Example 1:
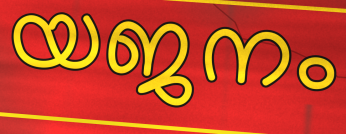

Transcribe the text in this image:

യജനം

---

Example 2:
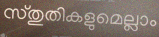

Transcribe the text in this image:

സ്തുതികളുമെല്ലാം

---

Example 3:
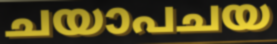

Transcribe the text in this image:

ചയാപചയ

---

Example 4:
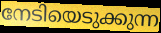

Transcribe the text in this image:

നേടിയെടുക്കുന്ന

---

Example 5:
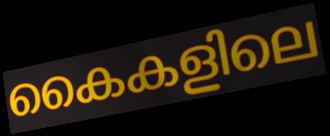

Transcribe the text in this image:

കൈകളിലെ